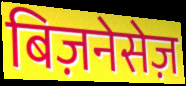
बिज़नेसेज़